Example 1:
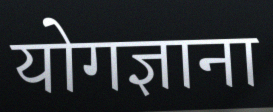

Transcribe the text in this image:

योगज्ञाना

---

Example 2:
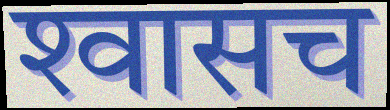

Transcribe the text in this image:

श्‍वासच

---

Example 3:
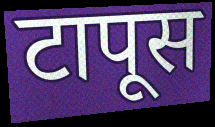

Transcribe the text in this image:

टापूस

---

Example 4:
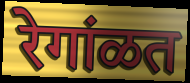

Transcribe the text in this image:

रेगांळत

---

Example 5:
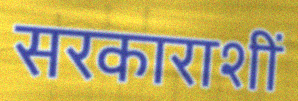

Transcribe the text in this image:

सरकाराशीं